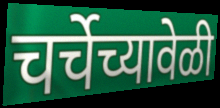
चर्चेच्यावेळी